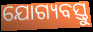
ଯୋଗ୍ୟବସ୍ତୁ